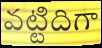
వట్టిదిగా